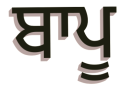
ਬਾਪੂ